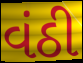
વંઠી